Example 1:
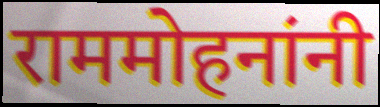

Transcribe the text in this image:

राममोहनांनी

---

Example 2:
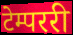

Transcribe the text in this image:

टेम्पररी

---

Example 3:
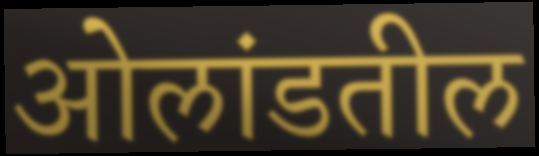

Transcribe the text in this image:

ओलांडतील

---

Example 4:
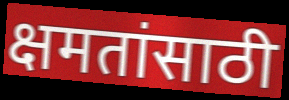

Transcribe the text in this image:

क्षमतांसाठी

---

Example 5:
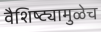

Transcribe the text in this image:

वैशिष्ट्यामुळेच